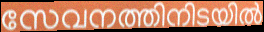
സേവനത്തിനിടയിൽ